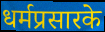
धर्मप्रसारके